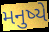
મનુષ્યે